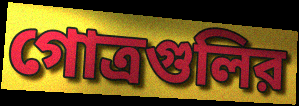
গোত্রগুলির